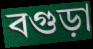
বগুড়া